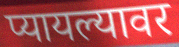
प्यायल्यावर